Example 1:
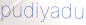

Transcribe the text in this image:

pudiyadu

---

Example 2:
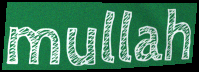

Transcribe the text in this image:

mullah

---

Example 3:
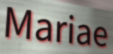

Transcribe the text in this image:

Mariae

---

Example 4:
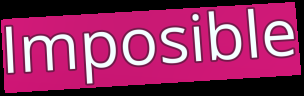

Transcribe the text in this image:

Imposible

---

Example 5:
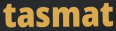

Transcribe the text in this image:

tasmat